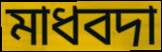
মাধবদা